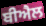
ਬੀਐਲ